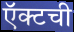
ऍक्टची